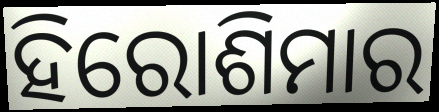
ହିରୋଶିମାର